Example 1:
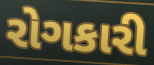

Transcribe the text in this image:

રોગકારી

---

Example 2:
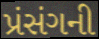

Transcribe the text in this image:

પ્રંસંગની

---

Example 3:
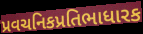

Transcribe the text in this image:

પ્રવચનિકપ્રતિભાધારક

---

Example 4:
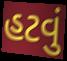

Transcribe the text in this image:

હટવું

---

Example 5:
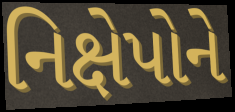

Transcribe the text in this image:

નિક્ષેપોને